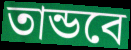
তান্ডবে